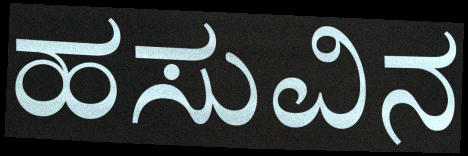
ಹಸುವಿನ